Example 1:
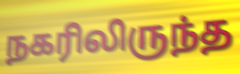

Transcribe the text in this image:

நகரிலிருந்த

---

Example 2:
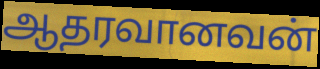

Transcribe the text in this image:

ஆதரவானவன்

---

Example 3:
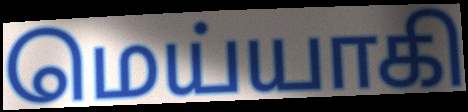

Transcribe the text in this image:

மெய்யாகி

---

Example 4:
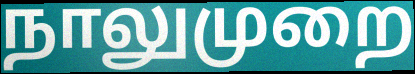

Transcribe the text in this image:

நாலுமுறை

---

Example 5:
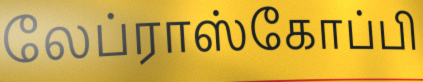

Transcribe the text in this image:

லேப்ராஸ்கோப்பி